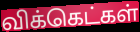
விக்கெட்கள்